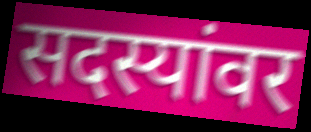
सदस्यांवर